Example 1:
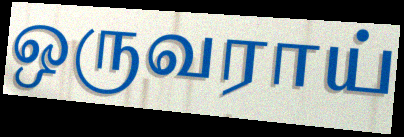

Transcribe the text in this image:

ஒருவராய்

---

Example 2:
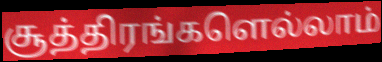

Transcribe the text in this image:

சூத்திரங்களெல்லாம்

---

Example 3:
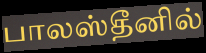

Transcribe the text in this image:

பாலஸ்தீனில்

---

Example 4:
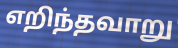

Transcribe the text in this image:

எறிந்தவாறு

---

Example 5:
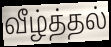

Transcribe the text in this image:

வீழ்த்தல்